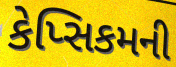
કેપ્સિકમની